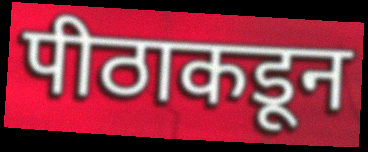
पीठाकडून